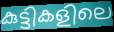
കുട്ടികളിലെ